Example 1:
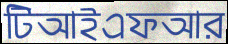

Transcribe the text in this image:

টিআইএফআর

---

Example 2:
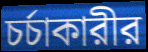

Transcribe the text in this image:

চর্চাকারীর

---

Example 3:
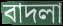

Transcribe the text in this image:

বাদলা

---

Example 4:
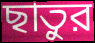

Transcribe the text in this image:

ছাতুর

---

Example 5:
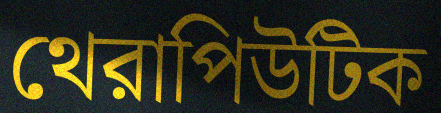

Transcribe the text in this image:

থেরাপিউটিক